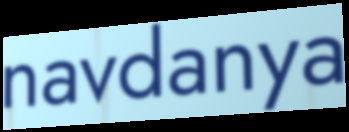
navdanya